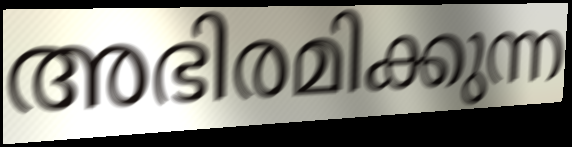
അഭിരമിക്കുന്ന